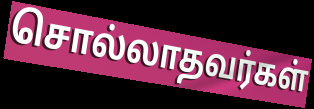
சொல்லாதவர்கள்